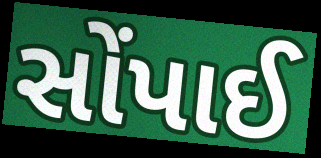
સોંપાઈ